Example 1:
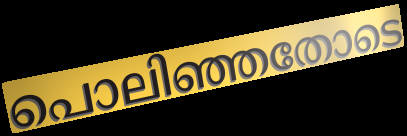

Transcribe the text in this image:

പൊലിഞ്ഞതോടെ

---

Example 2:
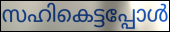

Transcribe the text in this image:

സഹികെട്ടപ്പോൾ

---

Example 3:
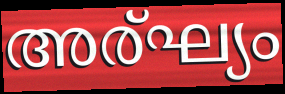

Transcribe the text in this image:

അര്ഘ്യം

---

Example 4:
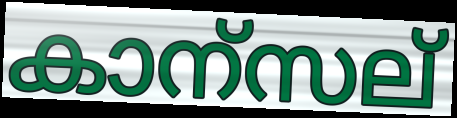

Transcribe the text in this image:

കാന്സല്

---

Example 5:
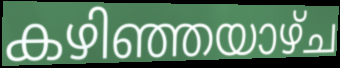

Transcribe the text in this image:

കഴിഞ്ഞയാഴ്ച